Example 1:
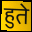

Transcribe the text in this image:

हुते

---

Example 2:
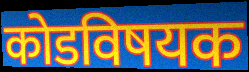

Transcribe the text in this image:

कोडविषयक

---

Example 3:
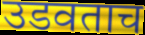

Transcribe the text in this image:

उडवताच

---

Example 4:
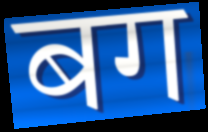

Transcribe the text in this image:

बग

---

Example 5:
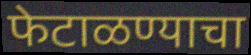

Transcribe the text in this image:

फेटाळण्याचा